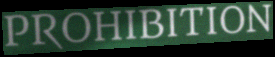
PROHIBITION